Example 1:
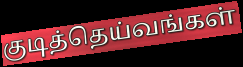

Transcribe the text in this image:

குடித்தெய்வங்கள்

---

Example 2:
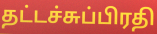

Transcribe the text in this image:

தட்டச்சுப்பிரதி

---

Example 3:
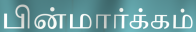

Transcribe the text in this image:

பின்மார்க்கம்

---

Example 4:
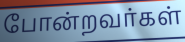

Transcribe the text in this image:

போன்றவர்கள்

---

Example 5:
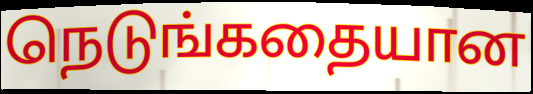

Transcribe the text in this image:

நெடுங்கதையான